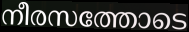
നീരസത്തോടെ